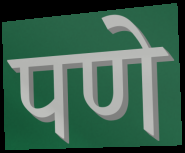
पणे